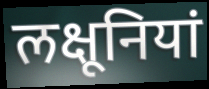
लक्षूनियां